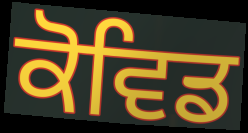
ਕੋਵਿਡ